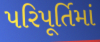
પરિપૂર્તિમાં